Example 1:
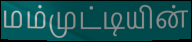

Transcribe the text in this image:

மம்முட்டியின்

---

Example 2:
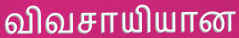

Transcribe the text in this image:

விவசாயியான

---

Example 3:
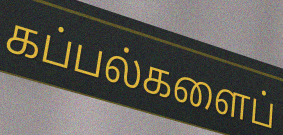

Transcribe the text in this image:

கப்பல்களைப்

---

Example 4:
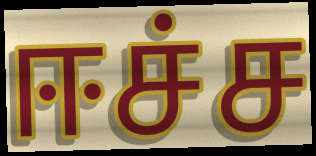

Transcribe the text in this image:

ஈச்ச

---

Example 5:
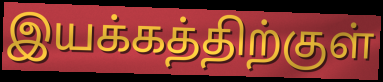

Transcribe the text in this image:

இயக்கத்திற்குள்